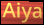
Aiya